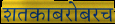
शतकाबरोबरच